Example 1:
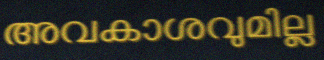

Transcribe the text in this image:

അവകാശവുമില്ല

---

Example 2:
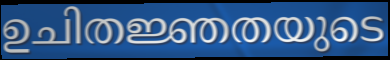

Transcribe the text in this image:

ഉചിതജ്ഞതയുടെ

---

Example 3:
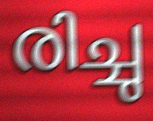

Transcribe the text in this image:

രിച്ചു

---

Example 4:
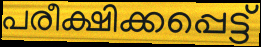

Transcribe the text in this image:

പരീക്ഷിക്കപ്പെട്ട്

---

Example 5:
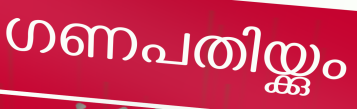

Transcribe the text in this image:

ഗണപതിയ്ക്കും